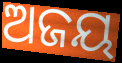
ଅଜୟ